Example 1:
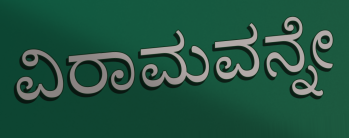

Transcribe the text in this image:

ವಿರಾಮವನ್ನೇ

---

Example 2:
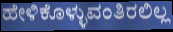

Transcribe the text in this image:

ಹೇಳಿಕೊಳ್ಳುವಂತಿರಲಿಲ್ಲ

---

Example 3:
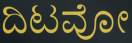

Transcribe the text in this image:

ದಿಟವೋ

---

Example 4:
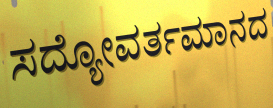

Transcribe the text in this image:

ಸದ್ಯೋವರ್ತಮಾನದ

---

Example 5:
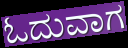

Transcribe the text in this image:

ಓದುವಾಗ